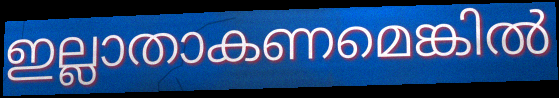
ഇല്ലാതാകണമെങ്കിൽ